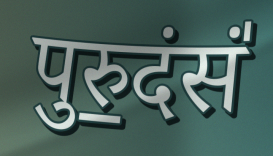
पुरु॒दंसं॑